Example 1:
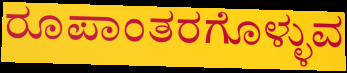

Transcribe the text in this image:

ರೂಪಾಂತರಗೊಳ್ಳುವ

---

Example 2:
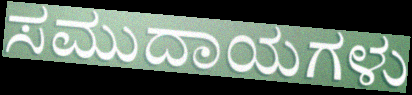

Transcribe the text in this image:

ಸಮುದಾಯಗಳು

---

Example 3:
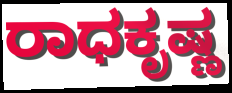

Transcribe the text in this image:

ರಾಧಕೃಷ್ಣ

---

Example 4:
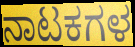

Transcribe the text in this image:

ನಾಟಕಗಳ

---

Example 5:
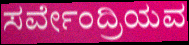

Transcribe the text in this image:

ಸರ್ವೇಂದ್ರಿಯವ